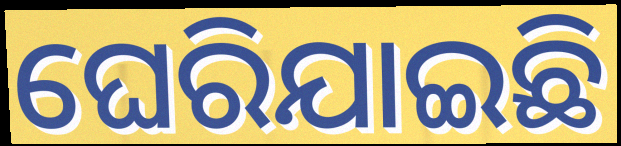
ଘେରିଯାଇଛି